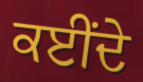
ਕਈਂਦੇ